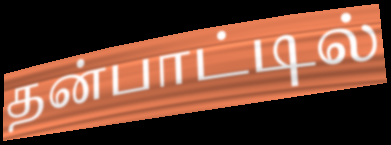
தன்பாட்டில்